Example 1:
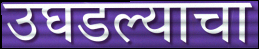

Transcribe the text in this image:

उघडल्याचा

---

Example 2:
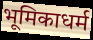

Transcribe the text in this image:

भूमिकाधर्म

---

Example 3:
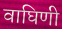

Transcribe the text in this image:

वाघिणी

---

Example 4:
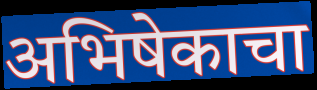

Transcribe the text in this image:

अभिषेकाचा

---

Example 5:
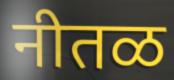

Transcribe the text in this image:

नीतळ